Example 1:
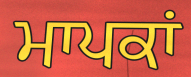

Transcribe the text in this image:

ਮਾਪਕਾਂ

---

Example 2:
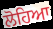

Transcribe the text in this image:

ਲੋਹਿਆ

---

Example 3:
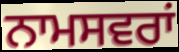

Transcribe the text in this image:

ਨਾਮਸਵਰਾਂ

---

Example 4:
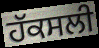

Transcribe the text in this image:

ਹੱਕਸਲੀ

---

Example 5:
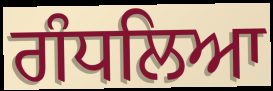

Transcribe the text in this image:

ਗੰਧਲਿਆ